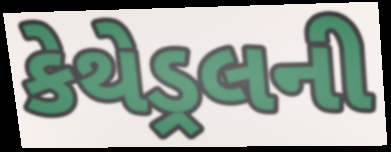
કેથેડ્રલની